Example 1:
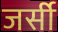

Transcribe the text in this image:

जर्सी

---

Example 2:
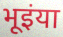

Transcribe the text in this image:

भूइंया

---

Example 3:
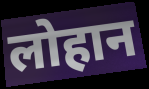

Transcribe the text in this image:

लोहान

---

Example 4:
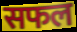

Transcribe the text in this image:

सफल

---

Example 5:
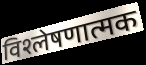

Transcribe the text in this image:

विश्लेषणात्मक